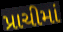
પ્રાચીમાં